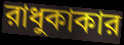
রাধুকাকার